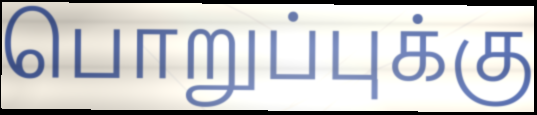
பொறுப்புக்கு